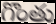
గొంతు